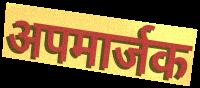
अपमार्जक